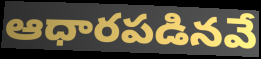
ఆధారపడినవే